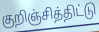
குறிஞ்சித்திட்டு